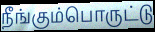
நீங்கும்பொருட்டு